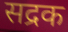
सद्रक